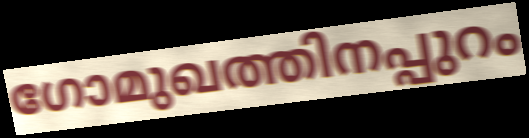
ഗോമുഖത്തിനപ്പുറം